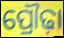
ପ୍ରୌଢ଼ା